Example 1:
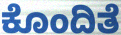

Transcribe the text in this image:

ಕೊಂದಿತೆ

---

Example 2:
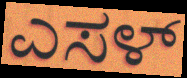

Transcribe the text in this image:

ಎಸಳ್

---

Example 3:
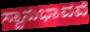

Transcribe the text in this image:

ಸ್ವಾನುಭಾವವೆ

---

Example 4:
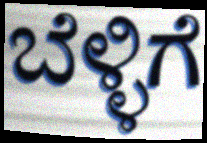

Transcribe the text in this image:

ಬೆಳ್ಳಿಗೆ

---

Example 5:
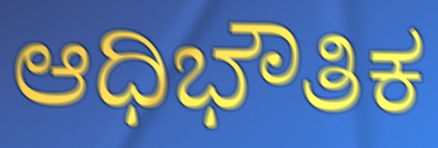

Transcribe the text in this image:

ಆಧಿಭೌತಿಕ